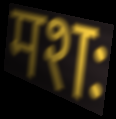
मशः